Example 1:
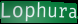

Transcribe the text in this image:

Lophura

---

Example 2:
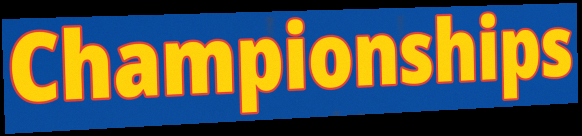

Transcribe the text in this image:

Championships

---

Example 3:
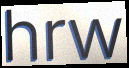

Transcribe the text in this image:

hrw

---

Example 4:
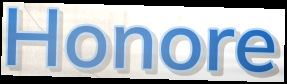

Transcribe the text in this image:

Honore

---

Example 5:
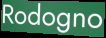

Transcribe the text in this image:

Rodogno